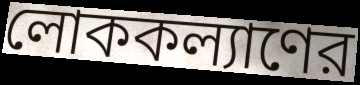
লোককল্যাণের